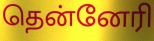
தென்னேரி